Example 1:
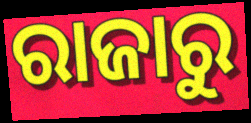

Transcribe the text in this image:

ରାଜାରୁ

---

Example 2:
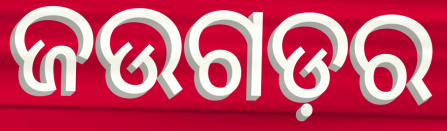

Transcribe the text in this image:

ଜଉଗଡ଼ର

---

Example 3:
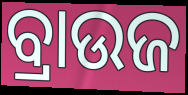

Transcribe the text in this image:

ବ୍ରାଉଜ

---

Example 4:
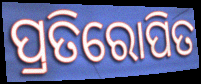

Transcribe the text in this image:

ପ୍ରତିରୋପିତ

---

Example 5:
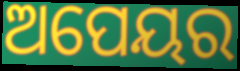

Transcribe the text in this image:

ଅପେୟର